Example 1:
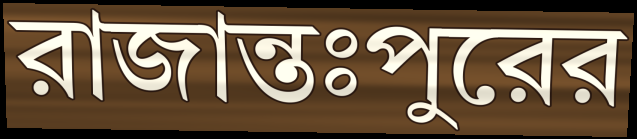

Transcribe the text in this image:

রাজান্তঃপুরের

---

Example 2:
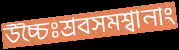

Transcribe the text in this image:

উচ্চৈঃশ্রবসমশ্বানাং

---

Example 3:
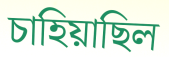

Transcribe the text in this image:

চাহিয়াছিল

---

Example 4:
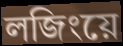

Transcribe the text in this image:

লজিংয়ে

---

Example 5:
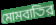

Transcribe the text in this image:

মোমবাতির